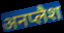
अनप्लैश